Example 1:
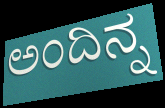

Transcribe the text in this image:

ಅಂದಿನ್ನ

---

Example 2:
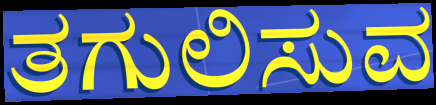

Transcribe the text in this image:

ತಗುಲಿಸುವ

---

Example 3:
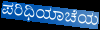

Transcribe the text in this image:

ಪರಿಧಿಯಾಚೆಯ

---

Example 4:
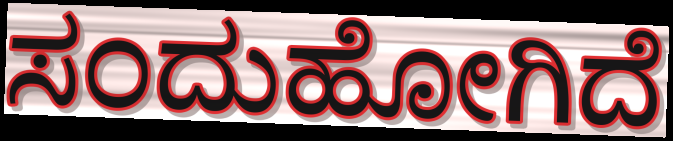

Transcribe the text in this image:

ಸಂದುಹೋಗಿದೆ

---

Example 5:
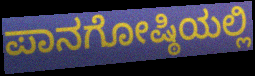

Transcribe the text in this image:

ಪಾನಗೋಷ್ಠಿಯಲ್ಲಿ